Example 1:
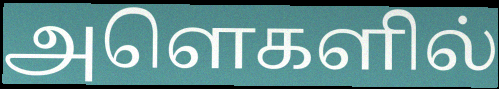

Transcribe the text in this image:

அளெகளில்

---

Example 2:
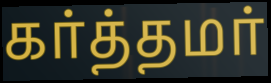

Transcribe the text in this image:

கர்த்தமர்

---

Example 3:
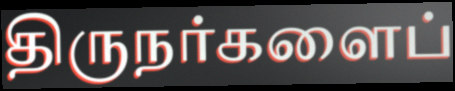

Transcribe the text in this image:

திருநர்களைப்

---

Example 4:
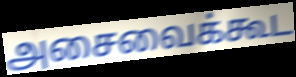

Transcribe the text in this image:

அசைவைக்கூட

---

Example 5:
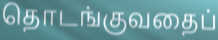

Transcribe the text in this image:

தொடங்குவதைப்